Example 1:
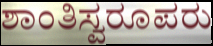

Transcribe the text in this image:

ಶಾಂತಿಸ್ವರೂಪರು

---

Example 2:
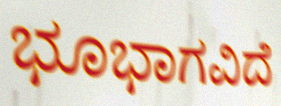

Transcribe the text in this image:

ಭೂಭಾಗವಿದೆ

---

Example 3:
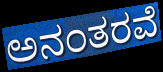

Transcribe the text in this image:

ಅನಂತರವೆ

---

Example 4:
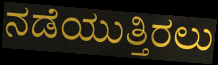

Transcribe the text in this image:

ನಡೆಯುತ್ತಿರಲು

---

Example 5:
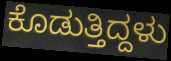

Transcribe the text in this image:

ಕೊಡುತ್ತಿದ್ದಳು